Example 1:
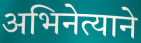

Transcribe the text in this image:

अभिनेत्याने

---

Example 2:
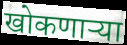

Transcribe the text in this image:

खोकणाऱ्या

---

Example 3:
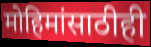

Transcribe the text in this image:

मोहिमांसाठीही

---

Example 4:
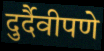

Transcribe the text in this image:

दुर्दैवीपणे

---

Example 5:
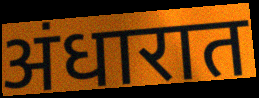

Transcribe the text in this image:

अंधारात